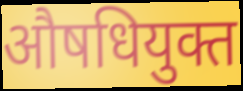
औषधियुक्त